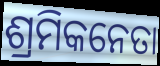
ଶ୍ରମିକନେତା